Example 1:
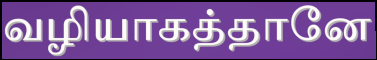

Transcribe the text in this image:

வழியாகத்தானே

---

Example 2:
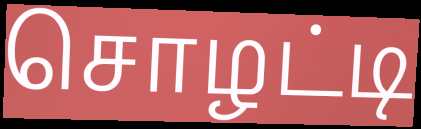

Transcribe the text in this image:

சொழட்டி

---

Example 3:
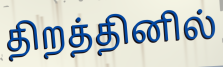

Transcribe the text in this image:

திறத்தினில்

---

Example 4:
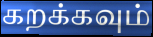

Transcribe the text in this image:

கறக்கவும்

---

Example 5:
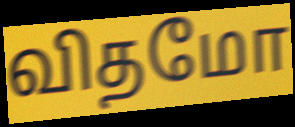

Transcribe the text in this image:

விதமோ